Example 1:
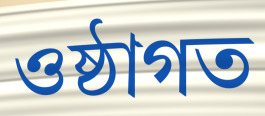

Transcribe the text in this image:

ওষ্ঠাগত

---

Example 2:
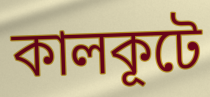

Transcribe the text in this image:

কালকূটে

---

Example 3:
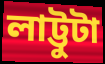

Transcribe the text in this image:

লাট্টুটা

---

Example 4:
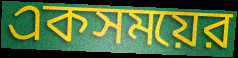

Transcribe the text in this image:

একসময়ের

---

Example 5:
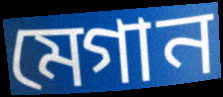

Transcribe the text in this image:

মেগান